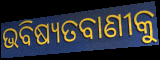
ଭବିଷ୍ୟତବାଣୀକୁ